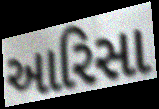
આરિસા